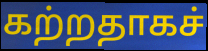
கற்றதாகச்